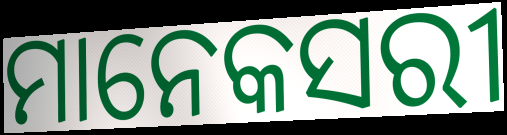
ମାନେକସରୀ